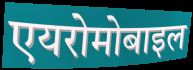
एयरोमोबाइल